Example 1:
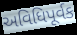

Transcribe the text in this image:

અવિધિપૂર્વક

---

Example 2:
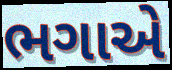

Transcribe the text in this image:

ભગાએ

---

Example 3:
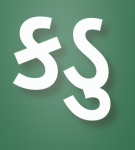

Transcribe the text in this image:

કડુ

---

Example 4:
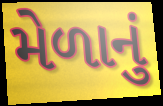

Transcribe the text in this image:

મેળાનું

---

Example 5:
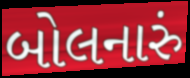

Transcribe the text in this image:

બોલનારું